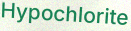
Hypochlorite